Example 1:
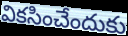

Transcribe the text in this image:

వికసించేందుకు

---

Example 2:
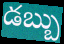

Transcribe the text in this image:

డబ్బు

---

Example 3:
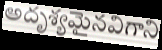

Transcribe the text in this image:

అదృశ్యమైనవిగాని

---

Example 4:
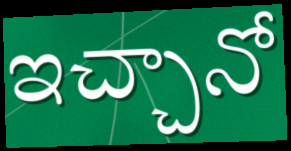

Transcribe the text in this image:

ఇచ్చానో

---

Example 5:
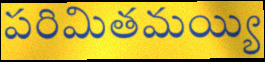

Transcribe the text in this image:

పరిమితమయ్యి